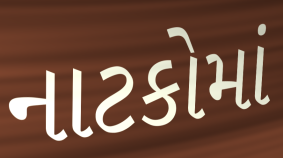
નાટકોમાં